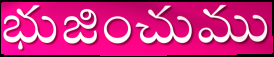
భుజించుము